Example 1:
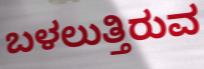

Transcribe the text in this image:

ಬಳಲುತ್ತಿರುವ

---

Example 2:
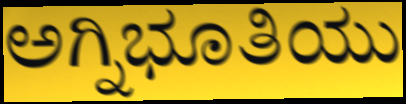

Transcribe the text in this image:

ಅಗ್ನಿಭೂತಿಯು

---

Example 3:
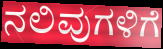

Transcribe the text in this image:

ನಲಿವುಗಳಿಗೆ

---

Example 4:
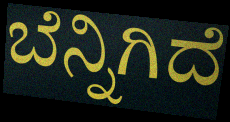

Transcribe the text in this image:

ಬೆನ್ನಿಗಿದೆ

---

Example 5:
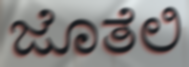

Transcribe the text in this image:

ಜೊತೆಲಿ